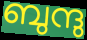
ബുന്ദു